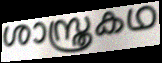
ശാസ്ത്രകഥ